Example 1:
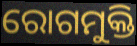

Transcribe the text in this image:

ରୋଗମୁକ୍ତି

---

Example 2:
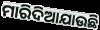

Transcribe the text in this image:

ମାରିଦିଆଯାଉଛି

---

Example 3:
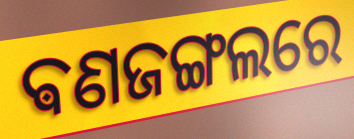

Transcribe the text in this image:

ଵଣଜଙ୍ଗଲରେ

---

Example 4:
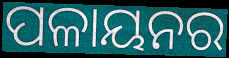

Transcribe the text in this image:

ପଳାୟନର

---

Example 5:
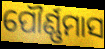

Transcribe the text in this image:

ପୌର୍ଣ୍ଣମାସ